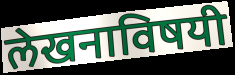
लेखनाविषयी